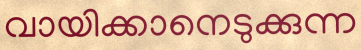
വായിക്കാനെടുക്കുന്ന